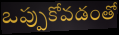
ఒప్పుకోవడంతో